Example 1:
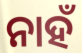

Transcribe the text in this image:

ନାହଁ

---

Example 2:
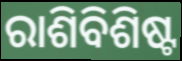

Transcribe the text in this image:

ରାଶିବିଶିଷ୍ଟ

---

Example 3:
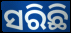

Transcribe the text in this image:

ସରିଛି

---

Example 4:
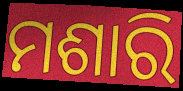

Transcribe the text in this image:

ମଶାରି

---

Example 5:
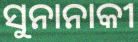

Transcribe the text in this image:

ସୁନାନାକୀ